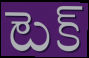
టెక్